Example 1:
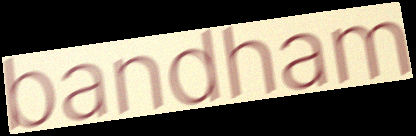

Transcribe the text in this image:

bandham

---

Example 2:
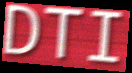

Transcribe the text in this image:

DTI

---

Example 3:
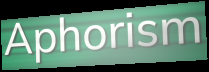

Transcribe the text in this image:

Aphorism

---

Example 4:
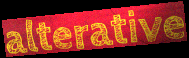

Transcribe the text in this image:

alterative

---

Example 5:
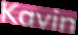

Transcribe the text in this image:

Kavin